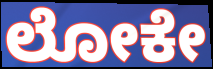
ಲೋಕೇ